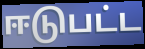
ஈடுபட்ட